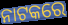
ନାଟକରେ